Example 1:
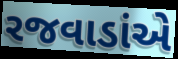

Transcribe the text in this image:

રજવાડાંએ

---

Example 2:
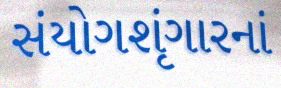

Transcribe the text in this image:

સંયોગશૃંગારનાં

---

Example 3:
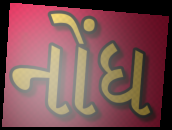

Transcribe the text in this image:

નોંધ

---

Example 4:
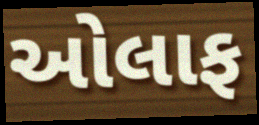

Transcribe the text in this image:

ઓલાફ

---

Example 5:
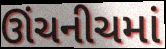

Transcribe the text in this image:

ઊંચનીચમાં